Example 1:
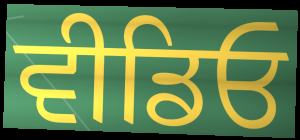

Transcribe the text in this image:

ਵੀਡਿਓ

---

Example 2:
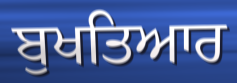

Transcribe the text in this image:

ਬੁਖਤਿਆਰ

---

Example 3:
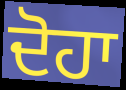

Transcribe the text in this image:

ਦੋਹਾ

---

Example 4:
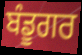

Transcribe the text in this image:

ਬੰਡੂਗਰ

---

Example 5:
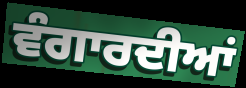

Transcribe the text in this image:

ਵੰਗਾਰਦੀਆਂ